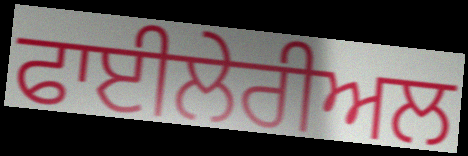
ਫਾਈਲੇਰੀਅਲ